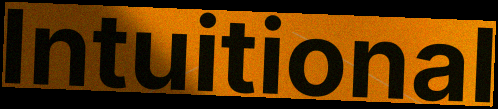
Intuitional